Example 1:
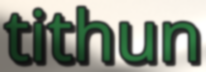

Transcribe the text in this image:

tithun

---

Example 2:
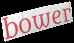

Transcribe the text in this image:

bower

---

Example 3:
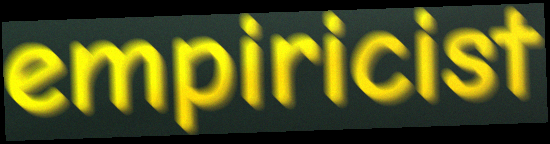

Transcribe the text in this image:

empiricist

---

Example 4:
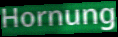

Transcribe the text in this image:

Hornung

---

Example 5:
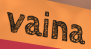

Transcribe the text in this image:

vaina